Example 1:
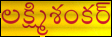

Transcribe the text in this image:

లక్ష్మిశంకర్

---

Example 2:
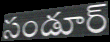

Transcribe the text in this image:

సండూర్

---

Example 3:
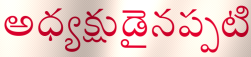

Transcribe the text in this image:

అధ్యక్షుడైనప్పటి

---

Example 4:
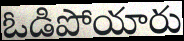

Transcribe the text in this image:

ఓడిపోయారు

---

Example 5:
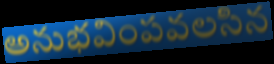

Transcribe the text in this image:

అనుభవింపవలసిన